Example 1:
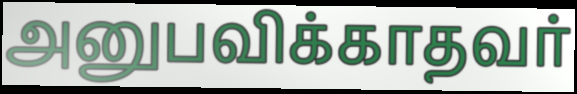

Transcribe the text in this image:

அனுபவிக்காதவர்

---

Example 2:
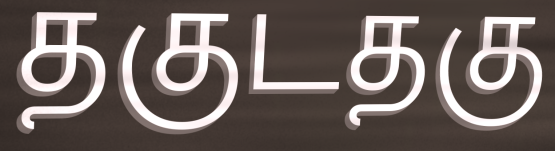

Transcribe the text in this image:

தகுடதகு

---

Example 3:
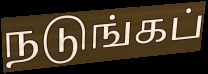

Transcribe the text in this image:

நடுங்கப்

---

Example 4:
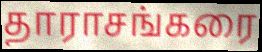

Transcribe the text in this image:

தாராசங்கரை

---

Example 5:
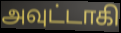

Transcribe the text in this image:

அவுட்டாகி